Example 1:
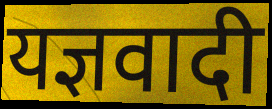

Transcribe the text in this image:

यज्ञवादी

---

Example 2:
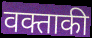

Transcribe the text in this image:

वक्ताकी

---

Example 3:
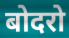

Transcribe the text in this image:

बोदरो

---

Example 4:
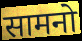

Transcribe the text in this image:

सामनो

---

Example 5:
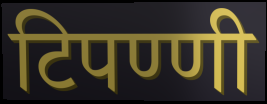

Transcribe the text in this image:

टिपण्णी